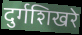
दुर्गशिखरे